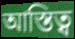
আস্তিত্ব